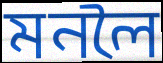
মনলৈ